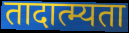
तादात्म्यता